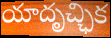
యాదృచ్ఛిక